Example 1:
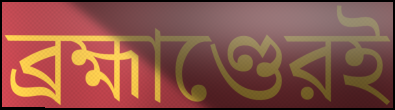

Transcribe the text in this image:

ব্রহ্মাণ্ডেরই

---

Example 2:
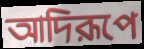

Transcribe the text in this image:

আদিরূপে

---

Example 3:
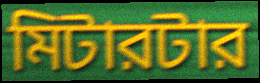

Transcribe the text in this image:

মিটারটার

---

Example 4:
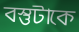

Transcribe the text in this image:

বস্তুটাকে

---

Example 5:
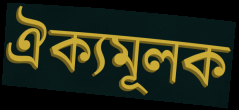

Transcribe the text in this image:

ঐক্যমূলক